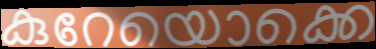
കുറേയൊക്കെ